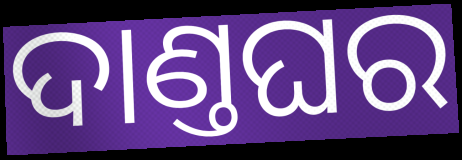
ଦାଣ୍ତଘର